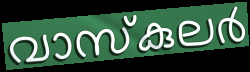
വാസ്കുലർ